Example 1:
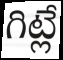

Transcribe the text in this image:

గిట్లే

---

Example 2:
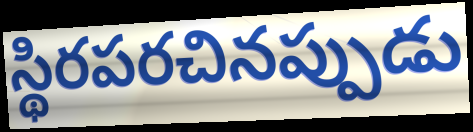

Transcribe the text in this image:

స్థిరపరచినప్పుడు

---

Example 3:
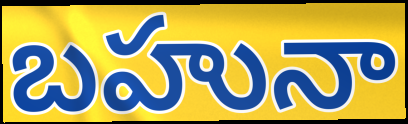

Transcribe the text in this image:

బహునా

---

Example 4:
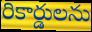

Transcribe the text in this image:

రికార్డులను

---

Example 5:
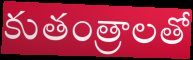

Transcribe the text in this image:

కుతంత్రాలతో